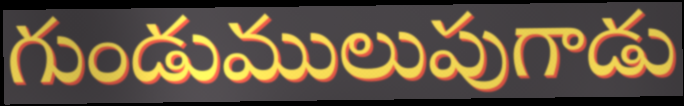
గుండుములుపుగాడు